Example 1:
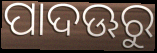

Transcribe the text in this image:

ପାଦଊରୁ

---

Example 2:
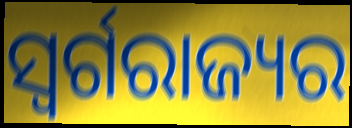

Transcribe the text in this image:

ସ୍ୱର୍ଗରାଜ୍ୟର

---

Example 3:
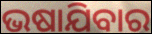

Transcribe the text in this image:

ଭଷାଯିବାର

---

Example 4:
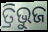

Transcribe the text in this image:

ତ୍ରିଭୁଜ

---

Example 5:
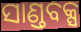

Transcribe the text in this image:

ସାଣ୍ଡବକ୍ସ